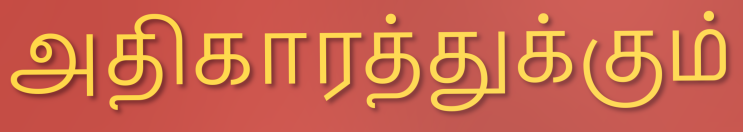
அதிகாரத்துக்கும்